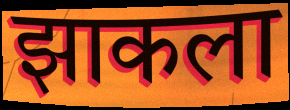
झाकला